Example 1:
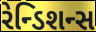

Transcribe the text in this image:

રેન્ડિશન્સ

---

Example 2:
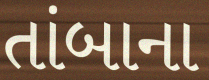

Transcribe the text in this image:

તાંબાના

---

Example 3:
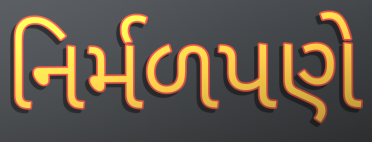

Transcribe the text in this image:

નિર્મળપણે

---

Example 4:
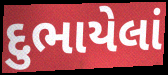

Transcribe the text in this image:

દુભાયેલાં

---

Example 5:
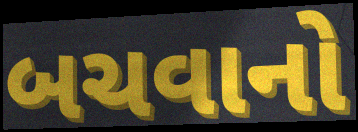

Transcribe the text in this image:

બચવાનો